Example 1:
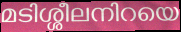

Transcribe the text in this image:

മടിശ്ശീലനിറയെ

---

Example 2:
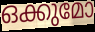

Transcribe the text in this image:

ഒക്കുമോ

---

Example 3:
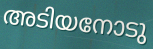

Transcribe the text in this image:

അടിയനോടു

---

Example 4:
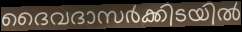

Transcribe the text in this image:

ദൈവദാസർക്കിടയിൽ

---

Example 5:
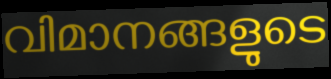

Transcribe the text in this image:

വിമാനങ്ങളുടെ